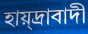
হায়্দ্রাবাদী